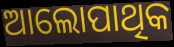
ଆଲୋପାଥିକ